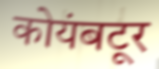
कोयंबटूर